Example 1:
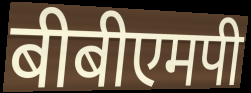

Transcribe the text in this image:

बीबीएमपी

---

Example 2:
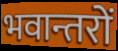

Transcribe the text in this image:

भवान्तरों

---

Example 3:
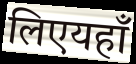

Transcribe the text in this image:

लिएयहाँ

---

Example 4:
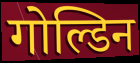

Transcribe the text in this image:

गोल्डिन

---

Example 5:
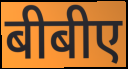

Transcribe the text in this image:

बीबीए